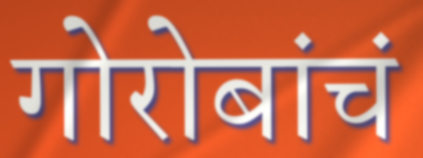
गोरोबांचं